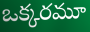
ఒక్కరమూ